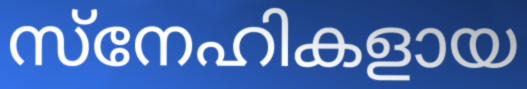
സ്നേഹികളായ